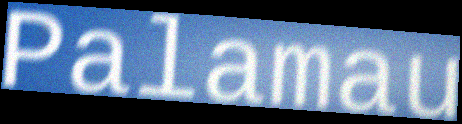
Palamau